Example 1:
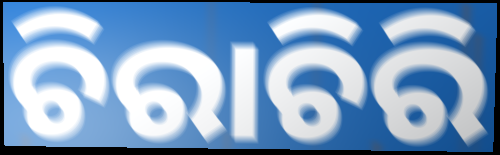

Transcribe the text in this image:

ଚିରାଚିରି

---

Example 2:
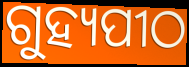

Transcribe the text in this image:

ଗୁହ୍ୟପୀଠ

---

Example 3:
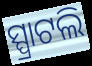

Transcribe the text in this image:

ସ୍ପ୍ରାଟଲି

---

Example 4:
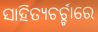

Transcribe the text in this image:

ସାହିତ୍ୟଚର୍ଚ୍ଚାରେ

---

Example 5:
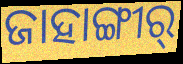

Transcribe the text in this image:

ଜାହାଙ୍ଗୀର୍